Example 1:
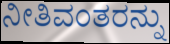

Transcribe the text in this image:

ನೀತಿವಂತರನ್ನು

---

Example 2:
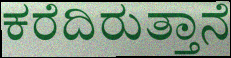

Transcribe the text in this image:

ಕರೆದಿರುತ್ತಾನೆ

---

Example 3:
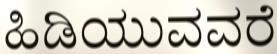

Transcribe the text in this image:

ಹಿಡಿಯುವವರೆ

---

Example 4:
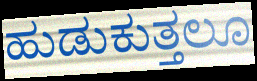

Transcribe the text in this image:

ಹುಡುಕುತ್ತಲೂ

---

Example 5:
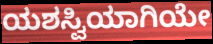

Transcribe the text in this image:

ಯಶಸ್ವಿಯಾಗಿಯೇ